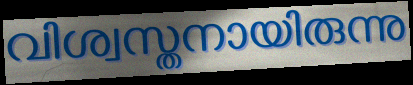
വിശ്വസ്തനായിരുന്നു